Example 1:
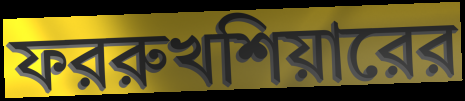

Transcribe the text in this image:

ফররুখশিয়ারের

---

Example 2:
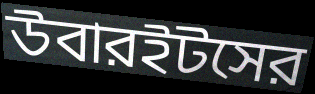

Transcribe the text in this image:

উবারইটসের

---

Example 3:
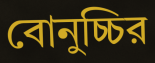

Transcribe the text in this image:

বোনুচ্চির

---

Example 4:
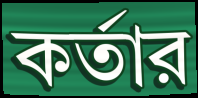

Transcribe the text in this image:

কর্তার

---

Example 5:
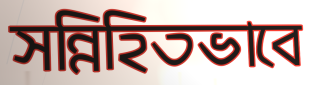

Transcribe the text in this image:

সন্নিহিতভাবে